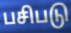
பசிபடு